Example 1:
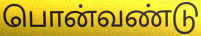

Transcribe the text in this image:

பொன்வண்டு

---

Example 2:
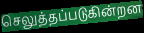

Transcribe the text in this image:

செலுத்தப்படுகின்றன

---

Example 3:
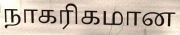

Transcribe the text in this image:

நாகரிகமான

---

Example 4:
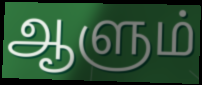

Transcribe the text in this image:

ஆளும்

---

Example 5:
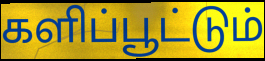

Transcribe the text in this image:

களிப்பூட்டும்